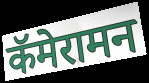
कॅमेरामन